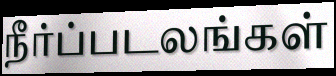
நீர்ப்படலங்கள்